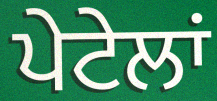
ਪੇਟੇਲਾਂ